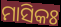
ମାସିକଃ